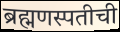
ब्रह्मणस्पतीची